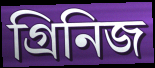
গ্রিনিজ